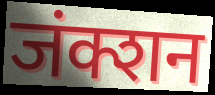
जंक्शन